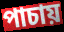
পাচায়